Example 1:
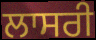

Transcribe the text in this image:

ਲਾਸਰੀ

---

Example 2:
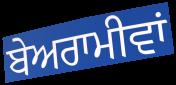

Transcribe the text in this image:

ਬੇਅਰਾਮੀਵਾਂ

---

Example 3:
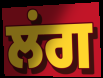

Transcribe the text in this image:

ਲਂਗ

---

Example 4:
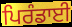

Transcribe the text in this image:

ਪਿਰੰਡਾਈ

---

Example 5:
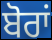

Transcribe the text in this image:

ਬੋਰਾਂ